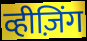
व्हीज़िंग